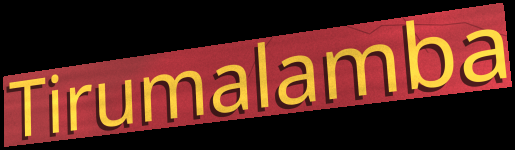
Tirumalamba